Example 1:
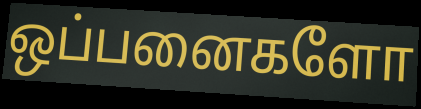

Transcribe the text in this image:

ஒப்பனைகளோ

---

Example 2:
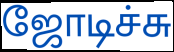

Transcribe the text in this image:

ஜோடிச்சு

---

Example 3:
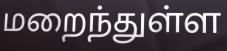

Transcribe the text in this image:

மறைந்துள்ள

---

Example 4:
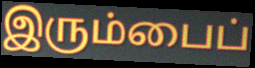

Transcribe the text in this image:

இரும்பைப்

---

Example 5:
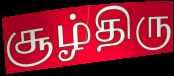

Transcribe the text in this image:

சூழ்திரு